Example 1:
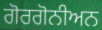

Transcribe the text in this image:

ਗੋਰਗੋਨੀਅਨ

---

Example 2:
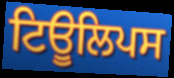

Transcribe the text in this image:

ਟਿਊਲਿਪਸ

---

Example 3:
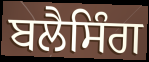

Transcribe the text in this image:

ਬਲੈਸਿੰਗ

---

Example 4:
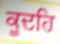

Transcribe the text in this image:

ਕੂਦਹਿ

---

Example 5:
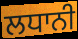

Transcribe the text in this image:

ਲਧਾਨੀ